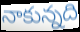
నాకున్నది